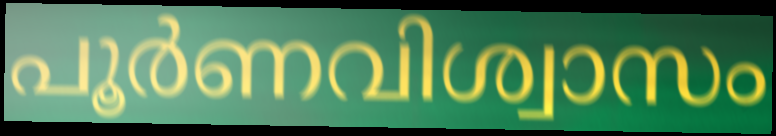
പൂർണവിശ്വാസം